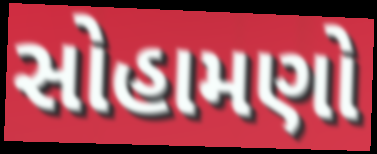
સોહામણો